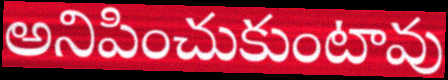
అనిపించుకుంటావు